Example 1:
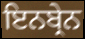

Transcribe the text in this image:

ਇਨਬ੍ਰੇਨ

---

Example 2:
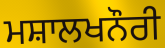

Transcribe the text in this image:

ਮਸ਼ਾਲਖਨੌਰੀ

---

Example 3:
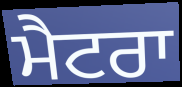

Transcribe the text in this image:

ਮੈਟਰਾ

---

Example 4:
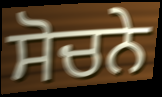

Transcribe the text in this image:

ਸੋਚਨੇ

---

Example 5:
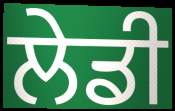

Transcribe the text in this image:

ਲੇਡੀ